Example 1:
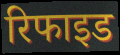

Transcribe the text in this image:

रिफाइड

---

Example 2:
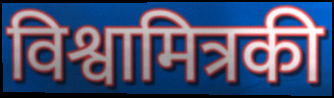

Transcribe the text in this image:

विश्वामित्रकी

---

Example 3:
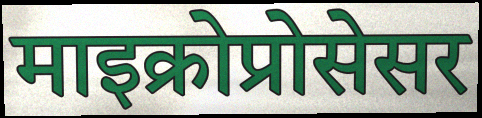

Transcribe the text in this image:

माइक्रोप्रोसेसर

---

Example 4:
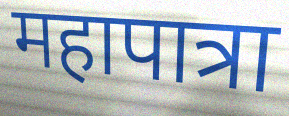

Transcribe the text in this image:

महापात्रा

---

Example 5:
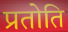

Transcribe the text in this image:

प्रतोति